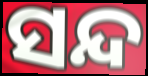
ସନ୍ଦ